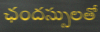
ఛందస్సులతో